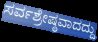
ಸರ್ವಶ್ರೇಷ್ಠವಾದದ್ದು